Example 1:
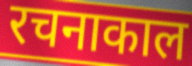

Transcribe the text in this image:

रचनाकाल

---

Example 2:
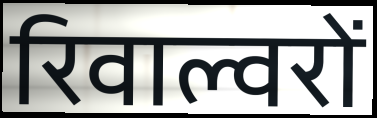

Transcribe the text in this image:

रिवाल्वरों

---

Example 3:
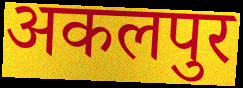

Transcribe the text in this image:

अकलपुर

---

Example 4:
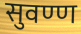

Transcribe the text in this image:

सुवण्ण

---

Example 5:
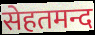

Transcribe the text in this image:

सेहतमन्द